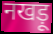
नखड़ू